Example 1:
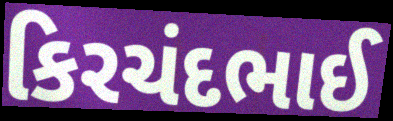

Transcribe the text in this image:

કિરચંદભાઈ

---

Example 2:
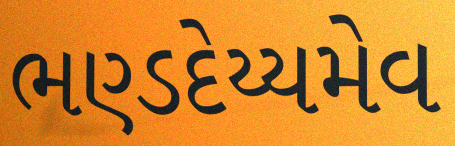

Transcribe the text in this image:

ભણ્ડદેય્યમેવ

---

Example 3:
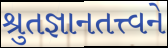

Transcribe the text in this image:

શ્રુતજ્ઞાનતત્ત્વને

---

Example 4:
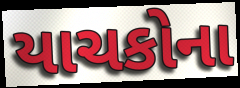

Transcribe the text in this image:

યાચકોના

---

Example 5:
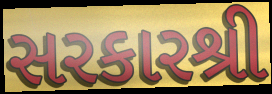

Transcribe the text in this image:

સરકારશ્રી